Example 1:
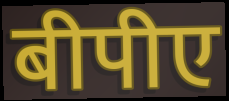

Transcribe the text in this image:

बीपीए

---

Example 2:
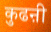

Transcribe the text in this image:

कुढऩी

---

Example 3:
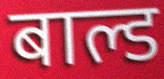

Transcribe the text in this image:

बाल्ड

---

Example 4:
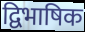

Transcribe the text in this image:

द्विभाषिक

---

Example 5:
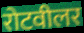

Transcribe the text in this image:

रोटवीलर